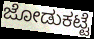
ಜೋಡುಕಟ್ಟೆ